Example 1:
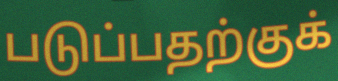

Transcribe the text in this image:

படுப்பதற்குக்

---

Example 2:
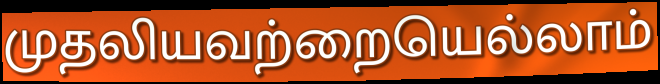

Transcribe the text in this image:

முதலியவற்றையெல்லாம்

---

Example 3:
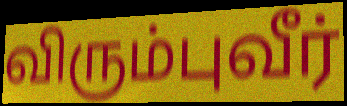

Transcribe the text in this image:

விரும்புவீர்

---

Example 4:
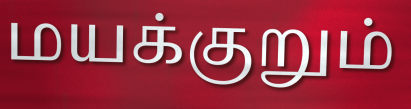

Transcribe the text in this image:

மயக்குறும்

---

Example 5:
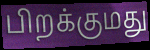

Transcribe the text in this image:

பிறக்குமது